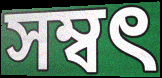
সম্বৎ